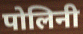
पोलिनी